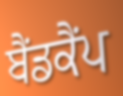
ਬੈਂਡਕੈਂਪ